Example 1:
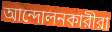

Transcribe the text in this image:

আন্দোলনকারীরা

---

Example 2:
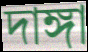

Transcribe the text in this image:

দাঙ্গা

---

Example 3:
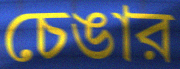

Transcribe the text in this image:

চেঙার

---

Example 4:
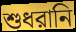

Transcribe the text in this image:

শুধরানি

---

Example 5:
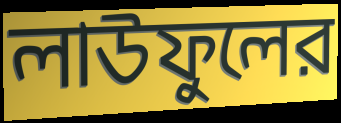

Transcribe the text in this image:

লাউফুলের